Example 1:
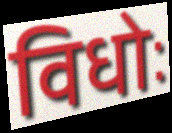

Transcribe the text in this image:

विधोः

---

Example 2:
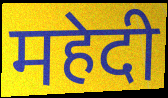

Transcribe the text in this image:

महेदी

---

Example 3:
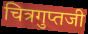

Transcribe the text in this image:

चित्रगुप्तजी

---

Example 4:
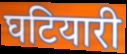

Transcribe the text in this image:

घटियारी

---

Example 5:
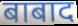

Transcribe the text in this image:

बाबाद